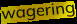
wagering